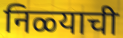
निळ्याची